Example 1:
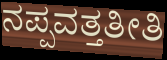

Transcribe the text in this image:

ನಪ್ಪವತ್ತತೀತಿ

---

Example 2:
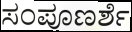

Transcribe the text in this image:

ಸಂಪೂಣರ್ಶೆ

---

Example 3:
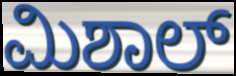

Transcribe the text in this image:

ಮಿಶಾಲ್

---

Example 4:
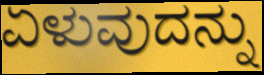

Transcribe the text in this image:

ಏಳುವುದನ್ನು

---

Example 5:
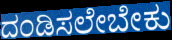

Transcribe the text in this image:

ದಂಡಿಸಲೇಬೇಕು